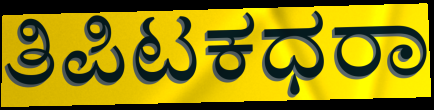
ತಿಪಿಟಕಧರಾ